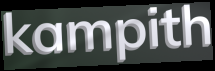
kampith